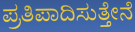
ಪ್ರತಿಪಾದಿಸುತ್ತೇನೆ